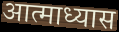
आत्माध्यास